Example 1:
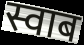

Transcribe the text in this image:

स्वाब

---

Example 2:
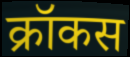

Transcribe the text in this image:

क्रॉकस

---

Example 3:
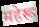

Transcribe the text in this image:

महेरू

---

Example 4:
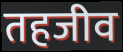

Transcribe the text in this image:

तहजीव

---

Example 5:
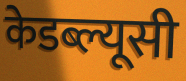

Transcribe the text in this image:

केडब्ल्यूसी